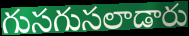
గుసగుసలాడారు